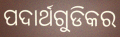
ପଦାର୍ଥଗୁଡିକର